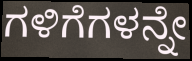
ಗಳಿಗೆಗಳನ್ನೇ